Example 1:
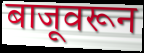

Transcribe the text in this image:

बाजूवरून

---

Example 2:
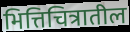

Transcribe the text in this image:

भित्तिचित्रातील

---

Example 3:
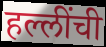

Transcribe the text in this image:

हल्लींची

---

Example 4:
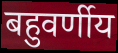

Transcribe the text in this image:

बहुवर्णीय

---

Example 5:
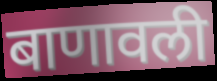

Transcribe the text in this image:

बाणावली